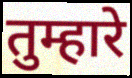
तुम्हारे